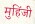
मुहिंजी